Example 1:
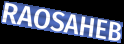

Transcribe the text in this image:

RAOSAHEB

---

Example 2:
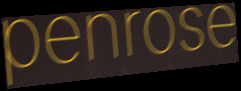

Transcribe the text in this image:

penrose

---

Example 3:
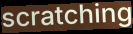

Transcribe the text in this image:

scratching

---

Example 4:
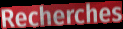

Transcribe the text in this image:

Recherches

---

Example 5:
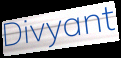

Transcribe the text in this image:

Divyant